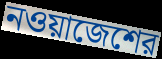
নওয়াজেশের